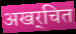
अखर्चित